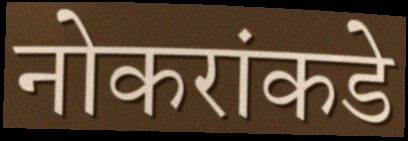
नोकरांकडे